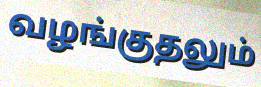
வழங்குதலும்